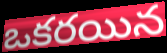
ఒకరయిన